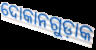
ଦୋକାନଗୁଡ଼ାକ